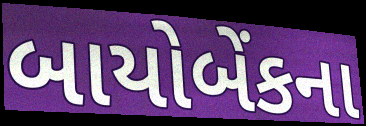
બાયોબેંકના